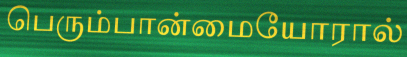
பெரும்பான்மையோரால்